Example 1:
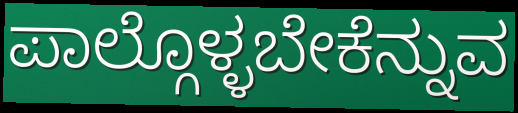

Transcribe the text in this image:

ಪಾಲ್ಗೊಳ್ಳಬೇಕೆನ್ನುವ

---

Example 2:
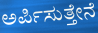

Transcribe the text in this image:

ಅರ್ಪಿಸುತ್ತೇನೆ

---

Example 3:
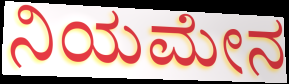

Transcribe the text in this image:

ನಿಯಮೇನ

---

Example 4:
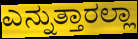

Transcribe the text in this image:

ಎನ್ನುತ್ತಾರಲ್ಲಾ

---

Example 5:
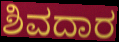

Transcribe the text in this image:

ಶಿವದಾರ